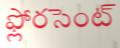
ఫ్లోరసెంట్